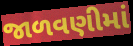
જાળવણીમાં